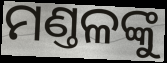
ମଣ୍ତଳଙ୍କୁ